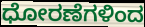
ಧೋರಣೆಗಳಿಂದ